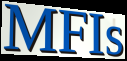
MFIs